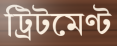
ট্ৰিটমেণ্ট